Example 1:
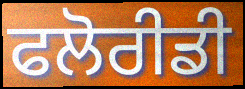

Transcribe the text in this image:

ਫਲੋਰੀਡੀ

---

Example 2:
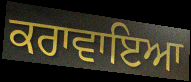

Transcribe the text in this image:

ਕਰਾਵਾਇਆ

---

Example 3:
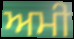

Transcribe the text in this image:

ਅਮੀ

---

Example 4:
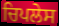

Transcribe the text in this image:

ਚਿਪਲੇਸ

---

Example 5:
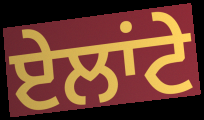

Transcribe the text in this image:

ਏਲਾਂਟੇ